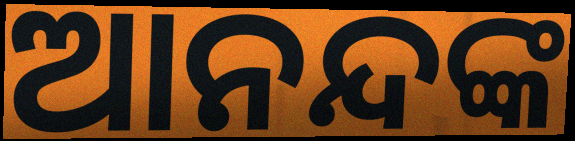
ଆନନ୍ଦଙ୍କ